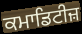
ਕਮਾਡਿਟੀਜ਼